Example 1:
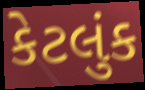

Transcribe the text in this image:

કેટલુંક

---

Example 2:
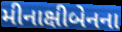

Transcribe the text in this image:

મીનાક્ષીબેનના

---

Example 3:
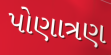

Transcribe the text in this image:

પોણાત્રણ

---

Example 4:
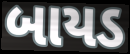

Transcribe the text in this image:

બાયડ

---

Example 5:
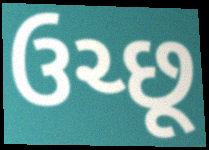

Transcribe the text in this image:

ઉચ્છૂ